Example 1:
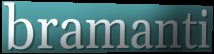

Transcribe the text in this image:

bramanti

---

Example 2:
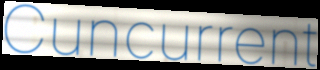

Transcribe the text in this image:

Cuncurrent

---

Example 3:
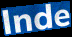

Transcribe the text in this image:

Inde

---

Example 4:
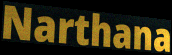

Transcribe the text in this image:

Narthana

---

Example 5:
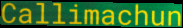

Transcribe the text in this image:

Callimachun